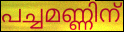
പച്ചമണ്ണിന്